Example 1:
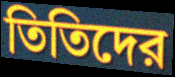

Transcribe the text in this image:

তিতিদের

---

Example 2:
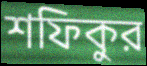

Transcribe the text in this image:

শফিকুর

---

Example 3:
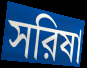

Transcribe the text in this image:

সরিষা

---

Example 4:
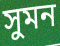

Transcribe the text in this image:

সুমন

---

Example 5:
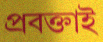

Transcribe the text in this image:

প্রবক্তাই